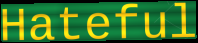
Hateful